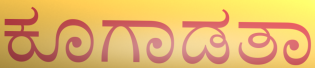
ಕೂಗಾಡತಾ